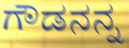
ಗೌಡನನ್ನ